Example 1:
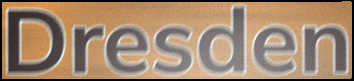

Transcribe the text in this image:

Dresden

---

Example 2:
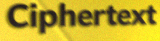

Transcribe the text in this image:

Ciphertext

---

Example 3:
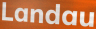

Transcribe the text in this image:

Landau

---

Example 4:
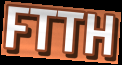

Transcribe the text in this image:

FTTH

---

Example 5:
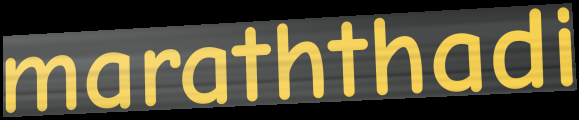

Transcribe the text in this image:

maraththadi